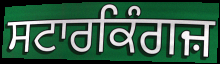
ਸਟਾਰਕਿੰਗਜ਼